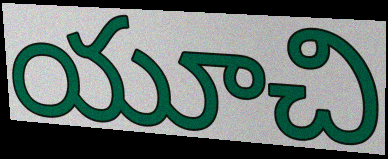
యూచి